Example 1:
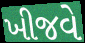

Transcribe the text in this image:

ખીજવે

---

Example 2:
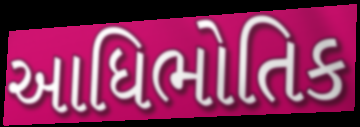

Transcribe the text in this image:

આધિભોતિક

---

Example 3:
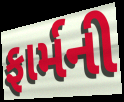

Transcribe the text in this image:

ફાર્મની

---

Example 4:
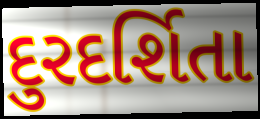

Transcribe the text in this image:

દુરદર્શિતા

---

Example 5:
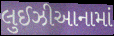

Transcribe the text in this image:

લુઈઝીઆનામાં